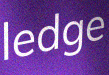
ledge